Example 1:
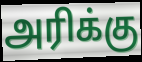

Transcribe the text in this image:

அரிக்கு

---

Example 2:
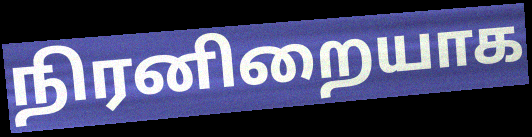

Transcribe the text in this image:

நிரனிறையாக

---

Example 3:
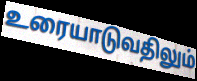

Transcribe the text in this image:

உரையாடுவதிலும்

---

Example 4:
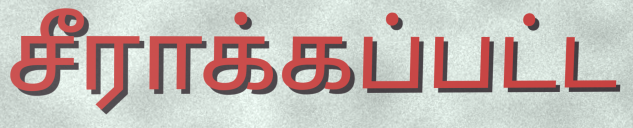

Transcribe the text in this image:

சீராக்கப்பட்ட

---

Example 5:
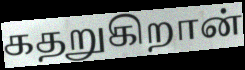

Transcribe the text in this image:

கதறுகிறான்